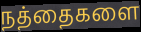
நத்தைகளை